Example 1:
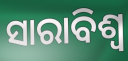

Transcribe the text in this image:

ସାରାବିଶ୍ବ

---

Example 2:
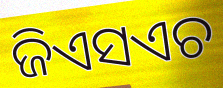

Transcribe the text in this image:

ଜିଏସଏଚ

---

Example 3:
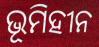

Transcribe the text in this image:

ଭୂମିହୀନ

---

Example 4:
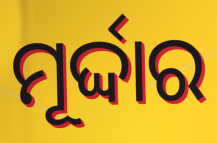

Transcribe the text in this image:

ମୂର୍ଦ୍ଦାର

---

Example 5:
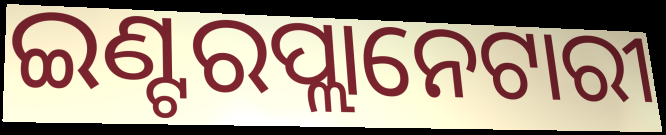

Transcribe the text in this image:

ଇଣ୍ଟରପ୍ଲାନେଟାରୀ